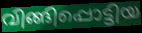
വിങ്ങിപ്പൊട്ടിയ